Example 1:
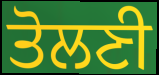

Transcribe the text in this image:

ਤੋਲਣੀ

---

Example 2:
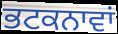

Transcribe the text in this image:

ਭਟਕਨਾਵਾਂ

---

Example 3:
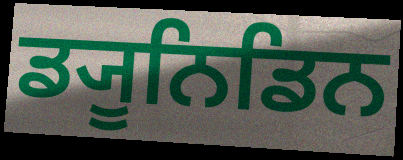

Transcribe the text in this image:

ਡ੍ਯੂਨਿਡਿਨ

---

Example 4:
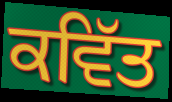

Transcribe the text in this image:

ਕਵਿੱਤ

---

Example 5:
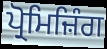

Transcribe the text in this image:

ਪ੍ਰੋਮਿਜ਼ਿੰਗ